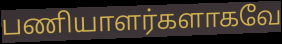
பணியாளர்களாகவே